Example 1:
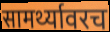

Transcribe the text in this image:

सामर्थ्यावरच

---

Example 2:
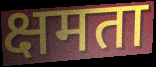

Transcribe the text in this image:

क्षमता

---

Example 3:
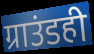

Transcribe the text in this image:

ग्राउंडही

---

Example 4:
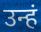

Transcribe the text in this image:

उन्हं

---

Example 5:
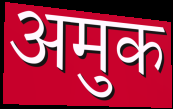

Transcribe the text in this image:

अमुक